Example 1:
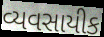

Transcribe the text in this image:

વ્યવસાયીક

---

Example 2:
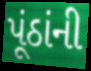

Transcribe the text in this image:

પૂંઠાંની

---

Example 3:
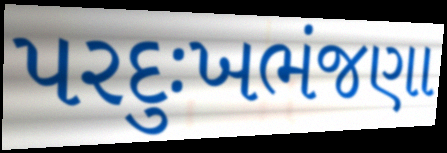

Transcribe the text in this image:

પરદુઃખભંજણા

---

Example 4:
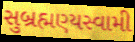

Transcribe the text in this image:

સુબ્રહ્મણ્યસ્વામી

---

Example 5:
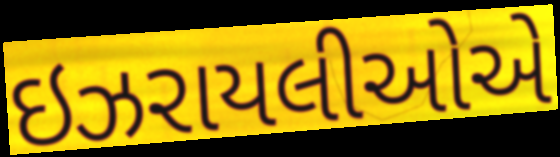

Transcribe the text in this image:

ઇઝરાયલીઓએ